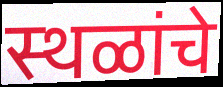
स्थळांचे